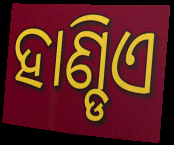
ହାଣ୍ଡିଏ